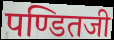
पण्डितजी